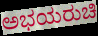
ಅಭಯರುಚಿ